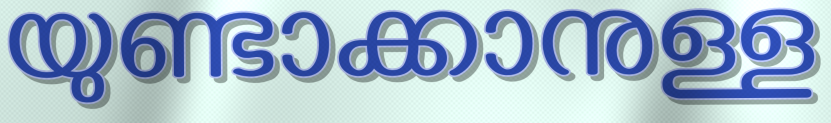
യുണ്ടാക്കാനുള്ള